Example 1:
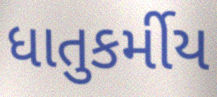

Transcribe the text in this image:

ધાતુકર્મીય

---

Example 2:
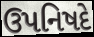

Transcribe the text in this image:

ઉપનિષદે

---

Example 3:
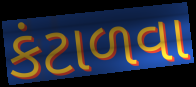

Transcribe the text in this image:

કંટાળવા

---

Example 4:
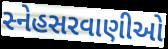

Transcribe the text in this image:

સ્નેહસરવાણીઓ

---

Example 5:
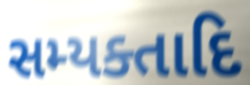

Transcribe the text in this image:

સમ્યક્તાદિ